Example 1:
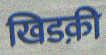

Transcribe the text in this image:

खिडक़ी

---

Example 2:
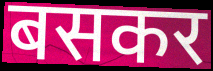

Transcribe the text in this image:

बसकर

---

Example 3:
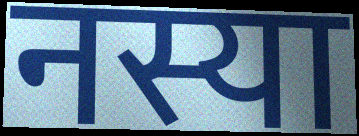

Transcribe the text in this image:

नस्या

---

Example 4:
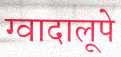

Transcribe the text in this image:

ग्वादालूपे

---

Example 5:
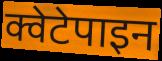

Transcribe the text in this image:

क्वेटेपाइन